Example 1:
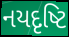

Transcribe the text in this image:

નયદૃષ્ટિ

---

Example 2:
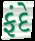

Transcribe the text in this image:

ફંદે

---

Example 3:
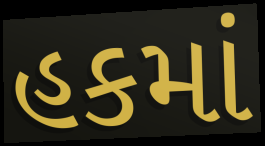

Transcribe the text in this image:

હકમાં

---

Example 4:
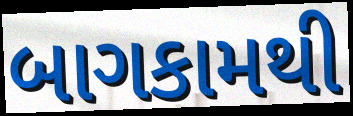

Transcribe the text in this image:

બાગકામથી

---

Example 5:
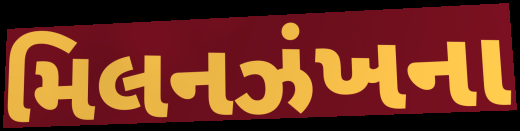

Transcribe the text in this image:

મિલનઝંખના